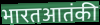
भारतआतंकी